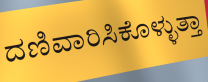
ದಣಿವಾರಿಸಿಕೊಳ್ಳುತ್ತಾ